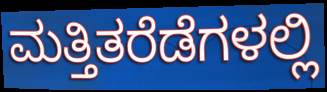
ಮತ್ತಿತರೆಡೆಗಳಲ್ಲಿ